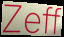
Zeff